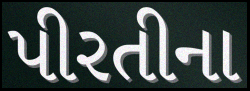
પીરતીના